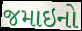
જમાઇનો